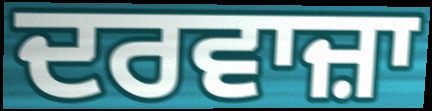
ਦਰਵਾਜ਼ਾ